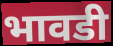
भावडी